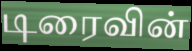
டிரைவின்